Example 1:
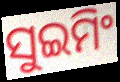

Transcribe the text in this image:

ସୁଇମିଂ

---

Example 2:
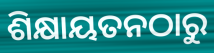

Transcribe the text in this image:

ଶିକ୍ଷାୟତନଠାରୁ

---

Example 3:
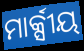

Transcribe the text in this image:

ମାର୍କ୍ସୀୟ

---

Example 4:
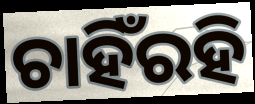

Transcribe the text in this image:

ଚାହିଁରହି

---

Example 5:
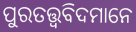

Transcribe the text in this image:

ପୁରତତ୍ତ୍ୱବିଦମାନେ